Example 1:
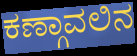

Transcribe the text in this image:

ಕಣ್ಗಾವಲಿನ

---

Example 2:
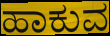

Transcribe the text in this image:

ಹಾಕುವ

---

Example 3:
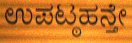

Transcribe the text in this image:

ಉಪಟ್ಠಹನ್ತೇ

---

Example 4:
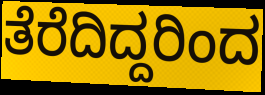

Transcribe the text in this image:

ತೆರೆದಿದ್ದರಿಂದ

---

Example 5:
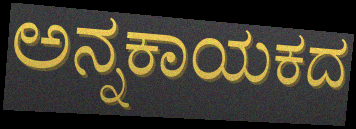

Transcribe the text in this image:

ಅನ್ನಕಾಯಕದ